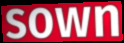
sown